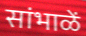
सांभाळें